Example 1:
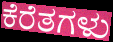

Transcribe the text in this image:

ಕೆರೆತಗಳು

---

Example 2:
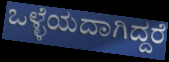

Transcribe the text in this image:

ಒಳ್ಳೆಯದಾಗಿದ್ದರೆ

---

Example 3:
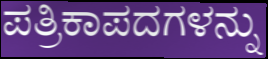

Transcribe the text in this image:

ಪತ್ರಿಕಾಪದಗಳನ್ನು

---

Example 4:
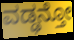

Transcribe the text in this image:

ವಡ್ಢನ್ತೋ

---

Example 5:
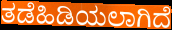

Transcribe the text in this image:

ತಡೆಹಿಡಿಯಲಾಗಿದೆ